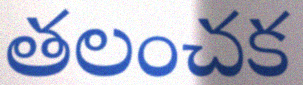
తలంచక